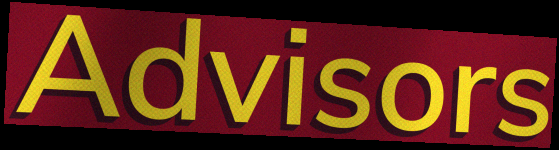
Advisors